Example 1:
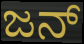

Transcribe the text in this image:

ಜನ್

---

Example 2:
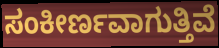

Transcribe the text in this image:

ಸಂಕೀರ್ಣವಾಗುತ್ತಿವೆ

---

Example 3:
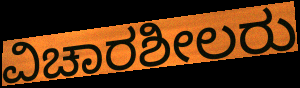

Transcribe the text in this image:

ವಿಚಾರಶೀಲರು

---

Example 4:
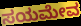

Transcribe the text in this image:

ಸಯಮೇವ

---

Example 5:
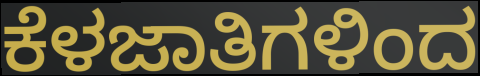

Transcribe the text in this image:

ಕೆಳಜಾತಿಗಳಿಂದ